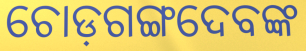
ଚୋଡ଼ଗଙ୍ଗଦେବଙ୍କ